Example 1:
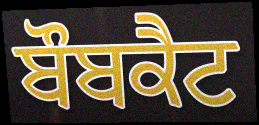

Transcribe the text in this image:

ਬੌਬਕੈਟ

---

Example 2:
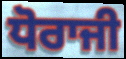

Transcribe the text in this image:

ਧੋਰਾਜੀ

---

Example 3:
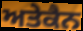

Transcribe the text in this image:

ਅਤੇਕੈਨ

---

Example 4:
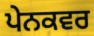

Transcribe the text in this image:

ਪੇਨਕਵਰ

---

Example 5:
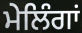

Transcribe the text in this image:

ਮੇਲਿੰਗਾਂ